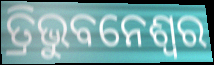
ତ୍ରିଭୁବନେଶ୍ବର